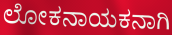
ಲೋಕನಾಯಕನಾಗಿ